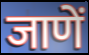
जाणें